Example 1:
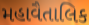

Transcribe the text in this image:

મહાવૈતાલિક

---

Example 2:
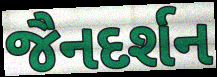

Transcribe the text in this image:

જૈનદર્શન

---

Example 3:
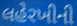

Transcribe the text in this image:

લહેરખીની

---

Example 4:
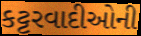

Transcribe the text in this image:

કટ્ટરવાદીઓની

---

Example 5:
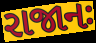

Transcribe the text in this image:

રાજાનઃ